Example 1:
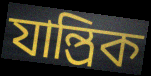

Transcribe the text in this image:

যান্ত্রিক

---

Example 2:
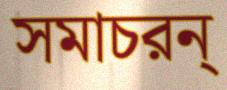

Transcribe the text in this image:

সমাচরন্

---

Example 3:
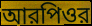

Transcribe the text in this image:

আরপিওর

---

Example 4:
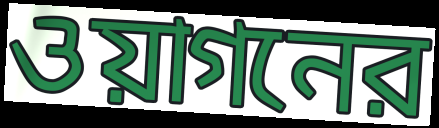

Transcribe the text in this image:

ওয়াগনের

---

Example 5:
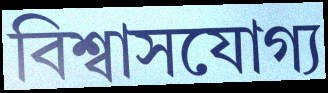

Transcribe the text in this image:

বিশ্বাসযোগ্য